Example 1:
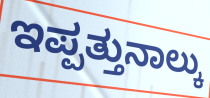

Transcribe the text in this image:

ಇಪ್ಪತ್ತುನಾಲ್ಕು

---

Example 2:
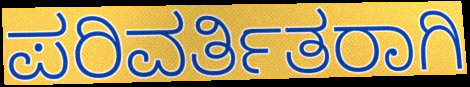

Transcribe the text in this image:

ಪರಿವರ್ತಿತರಾಗಿ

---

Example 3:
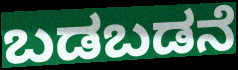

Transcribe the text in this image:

ಬಡಬಡನೆ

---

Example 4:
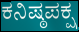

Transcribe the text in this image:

ಕನಿಷ್ಠಪಕ್ಷ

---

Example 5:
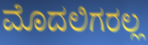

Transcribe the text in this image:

ಮೊದಲಿಗರಲ್ಲ